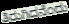
ತಿರುಗಿದನೆಂದು